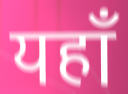
यहाँ